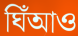
ঘিঁআও